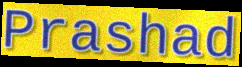
Prashad